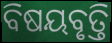
ବିଷୟବୃତ୍ତି